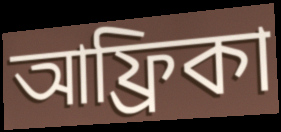
আফ্ৰিকা